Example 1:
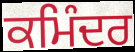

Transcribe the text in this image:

ਕਮਿੰਦਰ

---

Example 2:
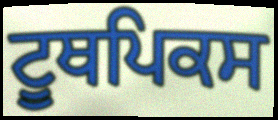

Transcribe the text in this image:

ਟੂਥਪਿਕਸ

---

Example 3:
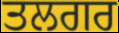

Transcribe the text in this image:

ਤਲਗਰ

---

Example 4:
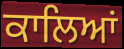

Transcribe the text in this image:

ਕਾਲਿਆਂ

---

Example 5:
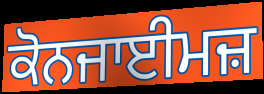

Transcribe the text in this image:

ਕੋਨਜਾਈਮਜ਼